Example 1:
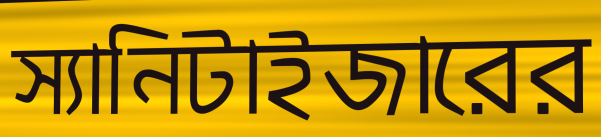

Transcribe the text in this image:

স্যানিটাইজারের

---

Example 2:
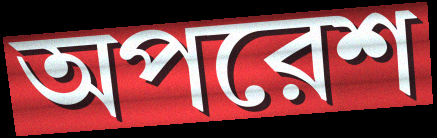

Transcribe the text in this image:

অপরেশ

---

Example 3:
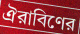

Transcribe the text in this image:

ঐরাবিণের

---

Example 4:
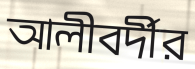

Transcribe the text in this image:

আলীবর্দীর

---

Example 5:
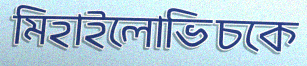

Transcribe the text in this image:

মিহাইলোভিচকে